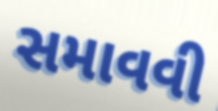
સમાવવી